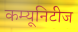
कम्यूनिटीज